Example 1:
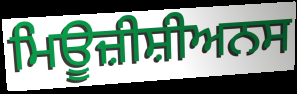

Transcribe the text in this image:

ਮਿਊਜ਼ੀਸ਼ੀਅਨਸ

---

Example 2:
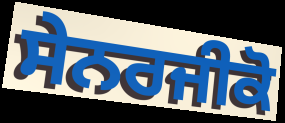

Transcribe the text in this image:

ਸੇਨਰਜੀਕੋ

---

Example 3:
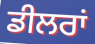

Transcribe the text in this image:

ਡੀਲਰਾਂ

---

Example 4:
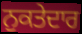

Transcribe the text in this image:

ਨੁਕਤੇਦਾਰ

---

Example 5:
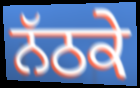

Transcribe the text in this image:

ਨੱਠਕੇ